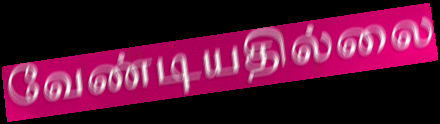
வேண்டியதில்லை